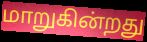
மாறுகின்றது